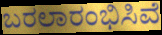
ಬರಲಾರಂಭಿಸಿವೆ